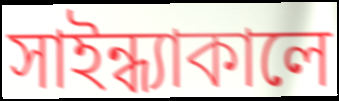
সাইন্ধ্যাকালে